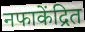
नफाकेंद्रित